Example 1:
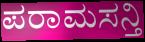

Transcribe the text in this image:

ಪರಾಮಸನ್ತಿ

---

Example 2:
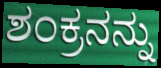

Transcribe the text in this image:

ಶಂಕ್ರನನ್ನು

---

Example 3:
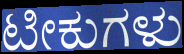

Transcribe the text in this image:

ಟೀಕುಗಳು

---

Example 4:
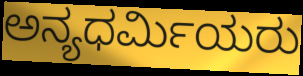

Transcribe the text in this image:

ಅನ್ಯಧರ್ಮಿಯರು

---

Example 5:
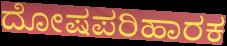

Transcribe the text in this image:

ದೋಷಪರಿಹಾರಕ